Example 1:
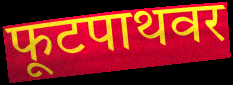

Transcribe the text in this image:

फूटपाथवर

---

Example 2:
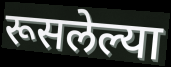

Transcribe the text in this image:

रूसलेल्या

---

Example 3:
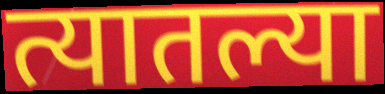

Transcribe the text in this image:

त्यातल्या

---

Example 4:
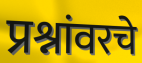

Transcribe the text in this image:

प्रश्नांवरचे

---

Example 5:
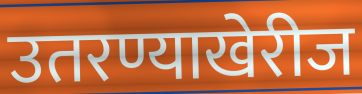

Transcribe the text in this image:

उतरण्याखेरीज